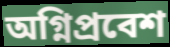
অগ্নিপ্রবেশ